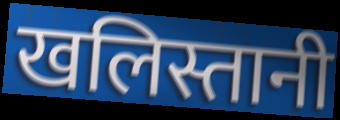
खलिस्तानी